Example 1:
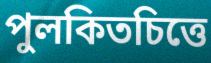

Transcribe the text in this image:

পুলকিতচিত্তে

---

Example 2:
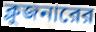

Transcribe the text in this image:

ক্লুজনারের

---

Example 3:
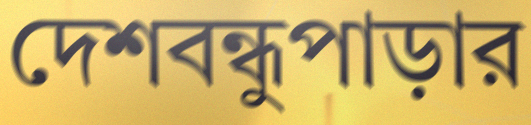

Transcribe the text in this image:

দেশবন্ধুপাড়ার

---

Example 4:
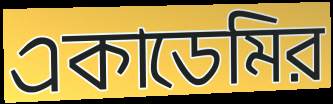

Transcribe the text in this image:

একাডেমির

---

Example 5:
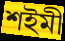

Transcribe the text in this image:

শইমী